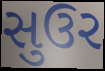
સુઉર